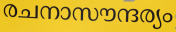
രചനാസൗന്ദര്യം